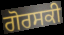
ਗੋਰਸਕੀ